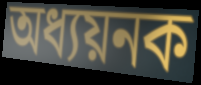
অধ্যয়নক